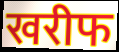
खरीफ